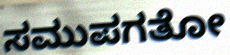
ಸಮುಪಗತೋ